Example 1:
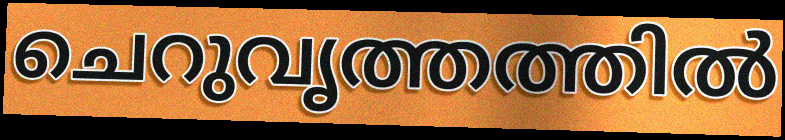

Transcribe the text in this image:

ചെറുവൃത്തത്തിൽ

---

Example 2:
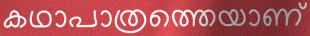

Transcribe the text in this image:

കഥാപാത്രത്തെയാണ്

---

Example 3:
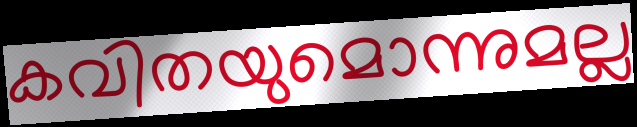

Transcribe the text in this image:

കവിതയുമൊന്നുമല്ല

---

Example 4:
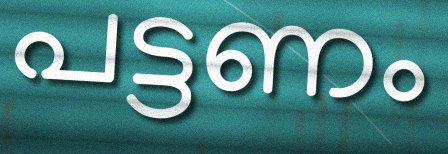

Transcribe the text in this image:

പട്ടണം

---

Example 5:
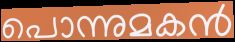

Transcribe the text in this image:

പൊന്നുമകൻ